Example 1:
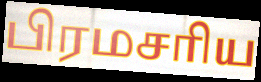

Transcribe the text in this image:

பிரமசரிய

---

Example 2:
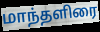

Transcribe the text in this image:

மாந்தளிரை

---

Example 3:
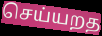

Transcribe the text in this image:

செய்யறத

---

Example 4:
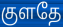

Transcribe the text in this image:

குளதே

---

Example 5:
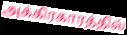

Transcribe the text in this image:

அக்கிரகாரத்தில்